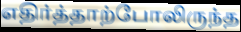
எதிர்த்தாற்போலிருந்த